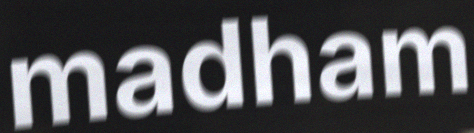
madham